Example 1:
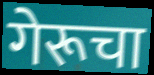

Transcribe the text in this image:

गेरूचा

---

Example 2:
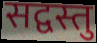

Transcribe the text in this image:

सद्वस्तु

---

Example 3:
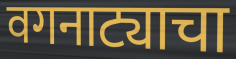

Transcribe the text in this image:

वगनाट्याचा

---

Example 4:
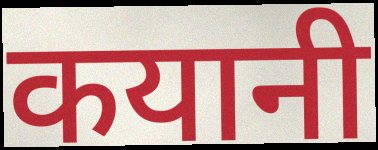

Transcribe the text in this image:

कयानी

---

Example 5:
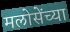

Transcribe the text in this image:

मलोसेंच्या